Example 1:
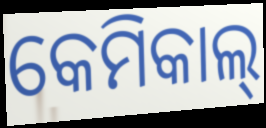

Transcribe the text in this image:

କେମିକାଲ୍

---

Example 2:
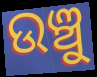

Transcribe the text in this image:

ଉଞ୍ଚୁ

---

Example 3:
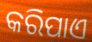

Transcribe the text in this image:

କରିପାଏ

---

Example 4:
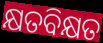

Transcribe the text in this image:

କ୍ଷତବିକ୍ଷତ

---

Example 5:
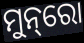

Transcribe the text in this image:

ମୁନ୍‌ରୋ